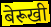
बेरूखी